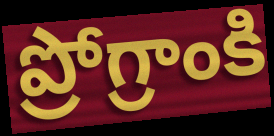
ప్రోగ్రాంకి